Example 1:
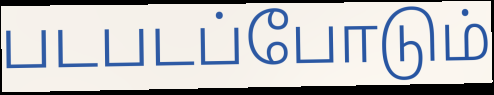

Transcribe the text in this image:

படபடப்போடும்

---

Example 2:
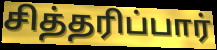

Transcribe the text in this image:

சித்தரிப்பார்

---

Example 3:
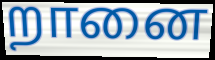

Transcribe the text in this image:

றானை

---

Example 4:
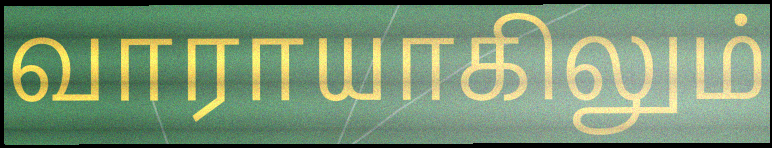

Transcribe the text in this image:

வாராயாகிலும்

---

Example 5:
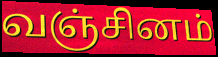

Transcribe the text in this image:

வஞ்சினம்